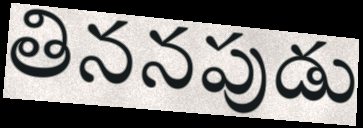
తిననపుడు